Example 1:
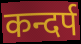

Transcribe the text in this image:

कन्दर्प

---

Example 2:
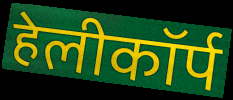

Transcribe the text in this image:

हेलीकॉर्प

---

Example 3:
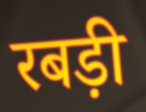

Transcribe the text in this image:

रबड़ी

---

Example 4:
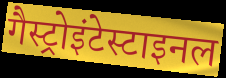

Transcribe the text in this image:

गैस्ट्रोइंटेस्टाइनल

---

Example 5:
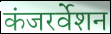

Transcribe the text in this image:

कंजरर्वेशन